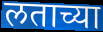
लताच्या